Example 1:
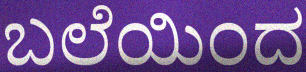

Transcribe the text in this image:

ಬಲೆಯಿಂದ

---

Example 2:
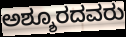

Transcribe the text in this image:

ಅಶ್ಶೂರದವರು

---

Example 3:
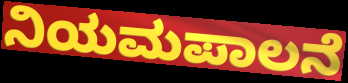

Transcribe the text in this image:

ನಿಯಮಪಾಲನೆ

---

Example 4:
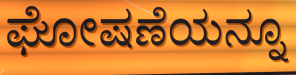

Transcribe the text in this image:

ಘೋಷಣೆಯನ್ನೂ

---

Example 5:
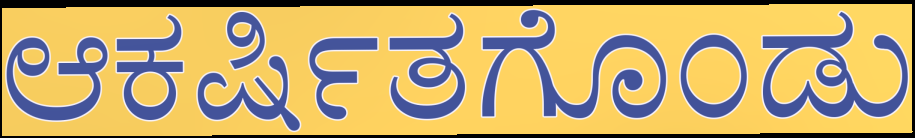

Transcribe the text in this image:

ಆಕರ್ಷಿತಗೊಂಡು